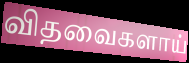
விதவைகளாய்